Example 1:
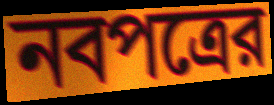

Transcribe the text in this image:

নবপত্রের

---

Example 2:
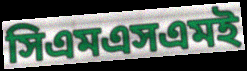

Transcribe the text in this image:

সিএমএসএমই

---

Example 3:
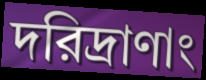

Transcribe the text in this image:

দরিদ্রাণাং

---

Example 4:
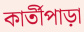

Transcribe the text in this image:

কার্তীপাড়া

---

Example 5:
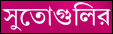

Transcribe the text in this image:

সুতোগুলির